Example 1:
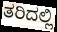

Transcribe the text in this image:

ತರಿದಲ್ಲಿ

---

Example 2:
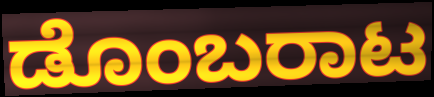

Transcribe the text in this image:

ಡೊಂಬರಾಟ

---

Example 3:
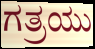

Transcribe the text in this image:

ಗತ್ರಯು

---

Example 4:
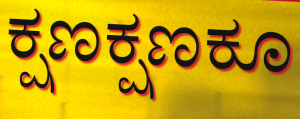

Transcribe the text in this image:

ಕ್ಷಣಕ್ಷಣಕೂ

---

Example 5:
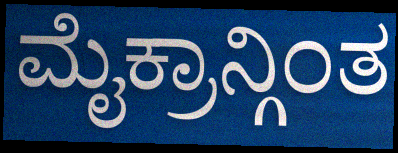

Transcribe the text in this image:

ಮೈಕ್ರಾನ್ಗಿಂತ